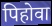
पिहोवा